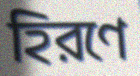
হিরণে